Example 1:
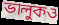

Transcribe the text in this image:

ভালুকও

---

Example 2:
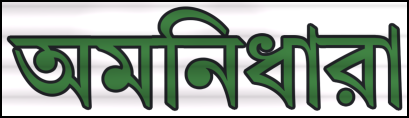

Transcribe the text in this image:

অমনিধারা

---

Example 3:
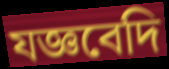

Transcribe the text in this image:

যজ্ঞবেদি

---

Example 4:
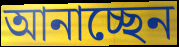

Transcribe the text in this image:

আনাচ্ছেন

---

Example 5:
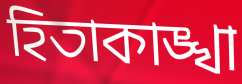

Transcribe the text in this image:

হিতাকাঙ্খা